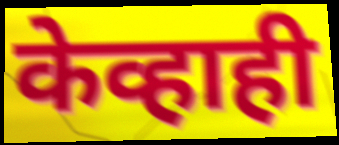
केव्हाही